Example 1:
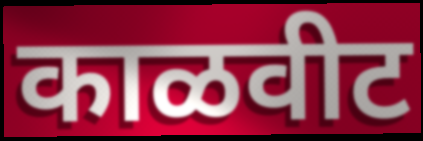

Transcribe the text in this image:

काळवीट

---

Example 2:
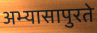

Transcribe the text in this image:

अभ्यासापुरते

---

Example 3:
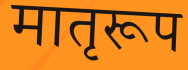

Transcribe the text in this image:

मातृरूप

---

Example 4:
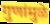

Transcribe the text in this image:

गुणांमुळे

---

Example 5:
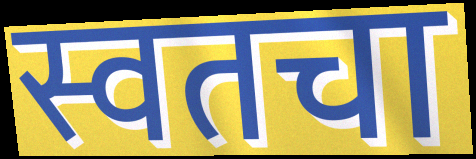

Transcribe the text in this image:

स्वतचा